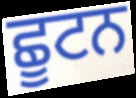
ਛੂਟਨ